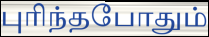
புரிந்தபோதும்